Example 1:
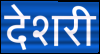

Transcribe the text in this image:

देशरी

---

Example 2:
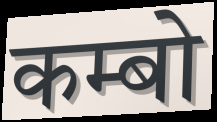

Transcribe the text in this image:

कम्बो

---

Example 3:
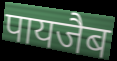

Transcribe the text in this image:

पायजैब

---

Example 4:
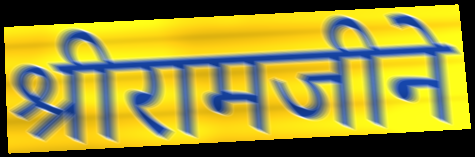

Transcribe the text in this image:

श्रीरामजीने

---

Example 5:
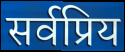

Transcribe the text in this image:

सर्वप्रिय